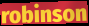
robinson